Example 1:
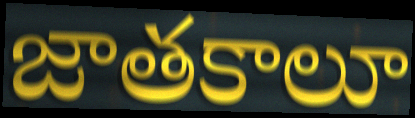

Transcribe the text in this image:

జాతకాలూ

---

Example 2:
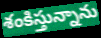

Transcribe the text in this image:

శంకిస్తున్నాను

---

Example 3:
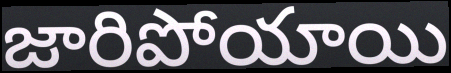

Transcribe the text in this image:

జారిపోయాయి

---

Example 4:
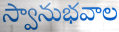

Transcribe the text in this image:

స్వానుభవాల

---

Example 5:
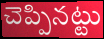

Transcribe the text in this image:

చెప్పినట్టు